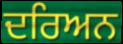
ਦਰਿਅਨ